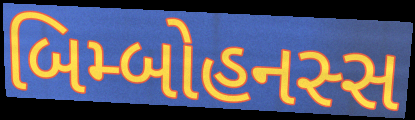
બિમ્બોહનસ્સ